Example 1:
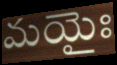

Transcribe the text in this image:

మయైః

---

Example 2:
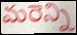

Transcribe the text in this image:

మరెన్ని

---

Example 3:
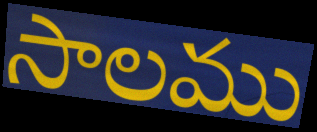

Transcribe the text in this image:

సాలము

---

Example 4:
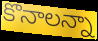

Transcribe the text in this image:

కొనాలన్నా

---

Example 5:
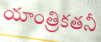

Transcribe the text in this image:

యాంత్రికతనీ